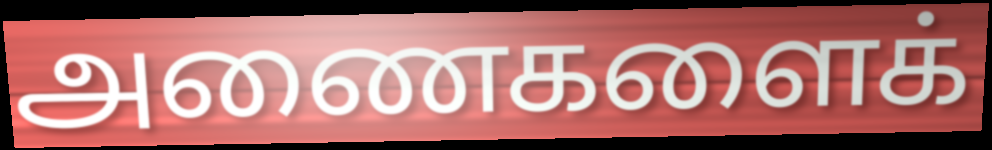
அணைகளைக்